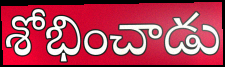
శోభించాడు